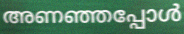
അണഞ്ഞപ്പോൾ